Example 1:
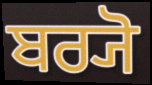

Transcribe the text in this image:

ਬਰ੍ਯੋ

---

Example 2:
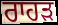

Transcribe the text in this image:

ਰਾਹੜ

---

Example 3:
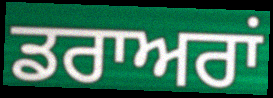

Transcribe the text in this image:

ਡਰਾਅਰਾਂ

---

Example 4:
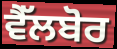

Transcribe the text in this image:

ਵੈੱਲਬੋਰ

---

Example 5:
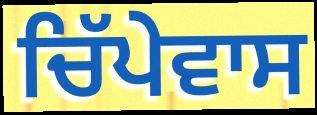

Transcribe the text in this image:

ਚਿੱਪੇਵਾਸ